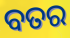
ବତର